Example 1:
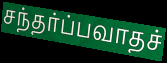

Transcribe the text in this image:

சந்தர்ப்பவாதச்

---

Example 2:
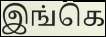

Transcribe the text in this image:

இங்கெ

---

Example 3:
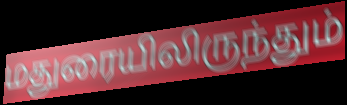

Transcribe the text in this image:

மதுரையிலிருந்தும்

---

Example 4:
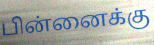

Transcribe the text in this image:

பின்னைக்கு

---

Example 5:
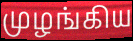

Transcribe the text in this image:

முழங்கிய